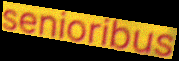
senioribus